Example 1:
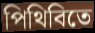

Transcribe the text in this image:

পিথিবিতে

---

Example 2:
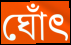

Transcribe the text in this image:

ঘোঁৎ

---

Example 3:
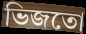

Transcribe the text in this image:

ভিজতো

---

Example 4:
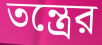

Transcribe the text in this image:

তন্ত্রের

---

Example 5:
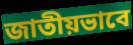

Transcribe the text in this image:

জাতীয়ভাবে